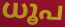
ധൂപ